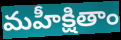
మహీక్షితాం